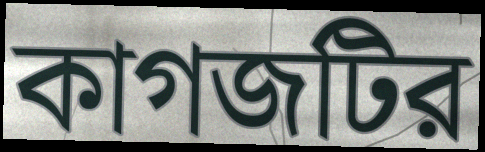
কাগজটির